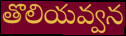
తొలియవ్వన